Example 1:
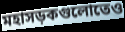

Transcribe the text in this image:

মহাসড়কগুলোতেও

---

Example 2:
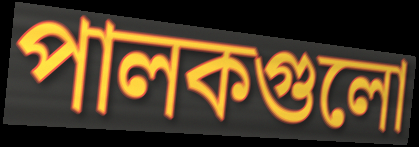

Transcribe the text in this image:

পালকগুলো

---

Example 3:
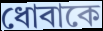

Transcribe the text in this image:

ধোবাকে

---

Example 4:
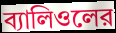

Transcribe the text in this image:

ব্যালিওলের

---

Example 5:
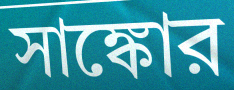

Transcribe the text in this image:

সাঙ্কোর